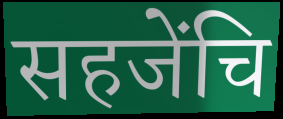
सहजेंचि